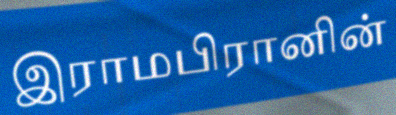
இராமபிரானின்